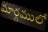
మార్గములో